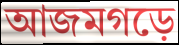
আজমগড়ে